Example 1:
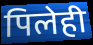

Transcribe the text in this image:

पिलेही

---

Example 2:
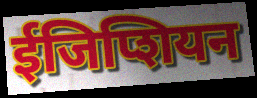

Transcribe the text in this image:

ईजिप्शियन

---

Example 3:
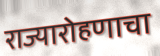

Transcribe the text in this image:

राज्यारोहणाचा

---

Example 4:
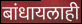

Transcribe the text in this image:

बांधायलाही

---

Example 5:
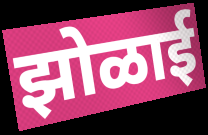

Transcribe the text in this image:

झोळाई